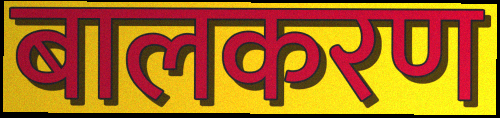
बालकरण